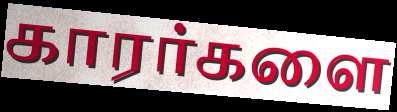
காரர்களை